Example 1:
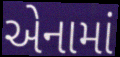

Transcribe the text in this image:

એનામાં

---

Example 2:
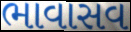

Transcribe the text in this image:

ભાવાસવ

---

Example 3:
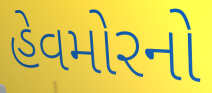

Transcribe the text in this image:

હેવમોરનો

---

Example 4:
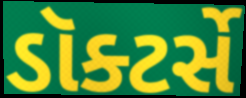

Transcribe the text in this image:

ડૉક્ટર્સે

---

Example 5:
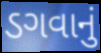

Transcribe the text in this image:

ડગવાનું